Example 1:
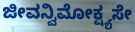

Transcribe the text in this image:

ಜೀವನ್ವಿಮೋಕ್ಷ್ಯಸೇ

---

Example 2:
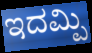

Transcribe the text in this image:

ಇದಮ್ಪಿ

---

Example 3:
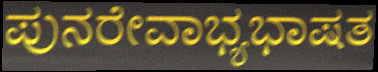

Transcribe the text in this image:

ಪುನರೇವಾಭ್ಯಭಾಷತ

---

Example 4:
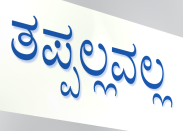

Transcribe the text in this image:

ತಪ್ಪಲ್ಲವಲ್ಲ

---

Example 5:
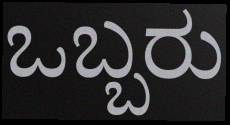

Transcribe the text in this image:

ಒಬ್ಬರು